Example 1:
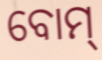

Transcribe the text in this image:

ବୋମ୍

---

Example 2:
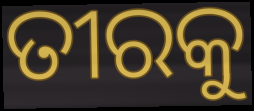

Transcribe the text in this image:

ତୀରକୁ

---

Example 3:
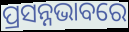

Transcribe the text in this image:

ପ୍ରସନ୍ନଭାବରେ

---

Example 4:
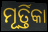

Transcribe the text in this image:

ମୂର୍ତ୍ତିକା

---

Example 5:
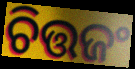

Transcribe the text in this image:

ଚିତ୍ତଜଂ